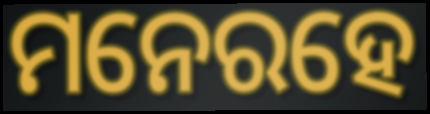
ମନେରହେ